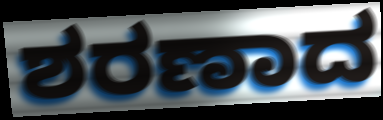
ಶರಣಾದ